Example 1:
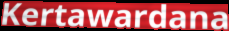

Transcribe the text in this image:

Kertawardana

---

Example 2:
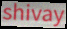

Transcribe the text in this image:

shivay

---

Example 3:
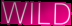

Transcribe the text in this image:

WILD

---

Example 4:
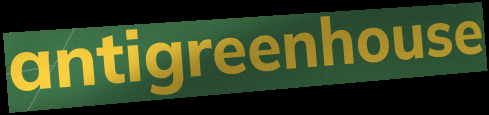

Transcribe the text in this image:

antigreenhouse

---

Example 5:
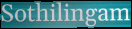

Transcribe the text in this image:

Sothilingam